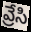
వ్రేసి